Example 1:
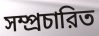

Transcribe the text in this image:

সম্প্রচারিত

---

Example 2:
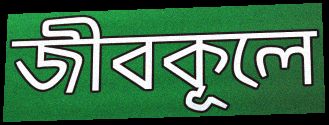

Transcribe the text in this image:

জীবকূলে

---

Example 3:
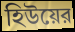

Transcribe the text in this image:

হিউয়ের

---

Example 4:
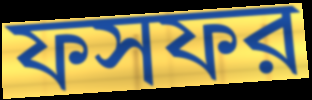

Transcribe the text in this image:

ফসফর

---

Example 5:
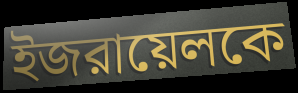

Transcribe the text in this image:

ইজরায়েলকে